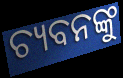
ଚ୍ୟବନଙ୍କୁ